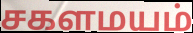
சகளமயம்